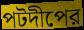
পটদীপের